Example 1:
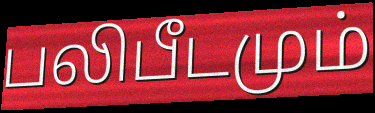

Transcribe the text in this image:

பலிபீடமும்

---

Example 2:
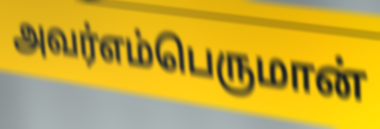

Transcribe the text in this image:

அவர்எம்பெருமான்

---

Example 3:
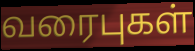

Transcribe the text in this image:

வரைபுகள்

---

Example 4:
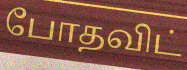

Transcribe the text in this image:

போதவிட்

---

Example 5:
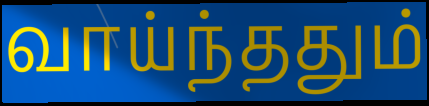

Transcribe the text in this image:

வாய்ந்ததும்